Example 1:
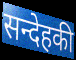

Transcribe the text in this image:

सन्देहकी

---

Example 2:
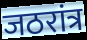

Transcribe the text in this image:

जठरांत्र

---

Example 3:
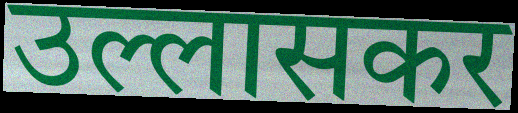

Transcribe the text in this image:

उल्लासकर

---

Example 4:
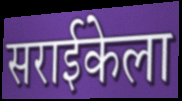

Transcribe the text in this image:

सराईकेला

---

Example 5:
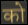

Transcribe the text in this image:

को